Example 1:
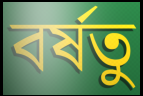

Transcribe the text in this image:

বর্ষতু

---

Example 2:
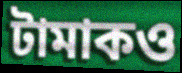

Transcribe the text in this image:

টামাকও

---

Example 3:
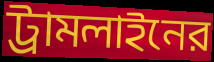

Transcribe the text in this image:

ট্রামলাইনের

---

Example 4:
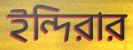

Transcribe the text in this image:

ইন্দিরার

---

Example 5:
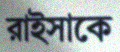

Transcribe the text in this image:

রাইসাকে